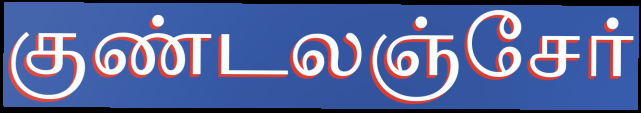
குண்டலஞ்சேர்